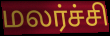
மலர்ச்சி